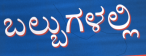
ಬಲ್ಬುಗಳಲ್ಲಿ